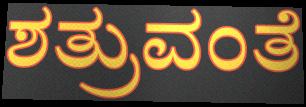
ಶತ್ರುವಂತೆ